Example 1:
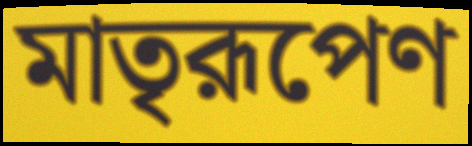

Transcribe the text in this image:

মাতৃরূপেণ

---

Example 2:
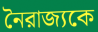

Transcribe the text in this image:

নৈরাজ্যকে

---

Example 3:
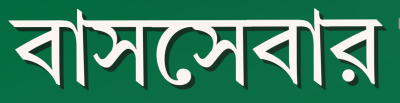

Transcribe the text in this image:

বাসসেবার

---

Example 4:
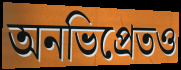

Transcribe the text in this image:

অনভিপ্রেতও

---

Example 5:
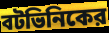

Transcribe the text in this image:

বটভিনিকের